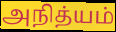
அநித்யம்